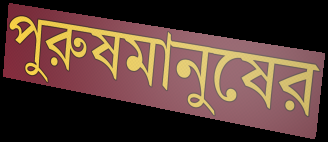
পুরুষমানুষের